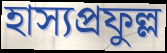
হাস্যপ্রফুল্ল